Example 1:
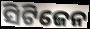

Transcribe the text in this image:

ସିଟିଜେନ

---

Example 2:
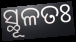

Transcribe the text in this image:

ସ୍ଥୂଳତଃ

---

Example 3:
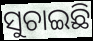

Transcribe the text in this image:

ସୁଚାଇଛି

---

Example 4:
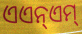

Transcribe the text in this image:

ଏଏନ୍ଏମ୍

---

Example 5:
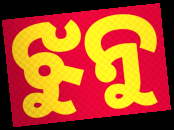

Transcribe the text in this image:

ଝୁନୁ